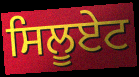
ਸਿਲੂਏਟ